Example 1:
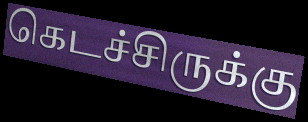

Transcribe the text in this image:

கெடச்சிருக்கு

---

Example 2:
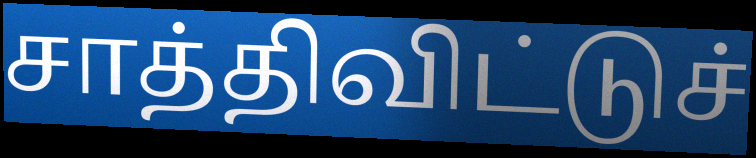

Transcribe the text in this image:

சாத்திவிட்டுச்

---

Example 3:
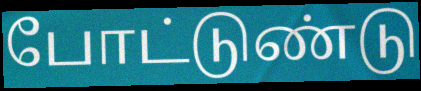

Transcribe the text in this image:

போட்டுண்டு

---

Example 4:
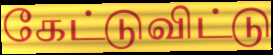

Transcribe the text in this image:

கேட்டுவிட்டு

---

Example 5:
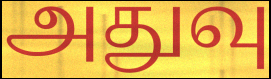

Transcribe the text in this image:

அதுவு